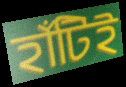
হাঁটিই